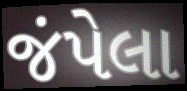
જંપેલા